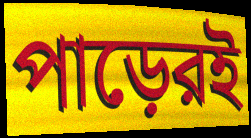
পাড়েরই